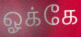
ஓக்கே